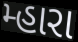
મ્હારા